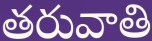
తరువాతి